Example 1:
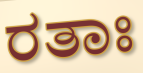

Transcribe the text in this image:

ರತಾಃ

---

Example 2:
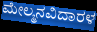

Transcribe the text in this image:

ಮೇಲ್ಮನವಿದಾರಳ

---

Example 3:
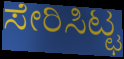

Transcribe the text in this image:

ಸೇರಿಸಿಟ್ಟ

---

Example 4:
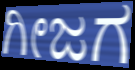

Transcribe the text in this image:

ಗೀಜಗ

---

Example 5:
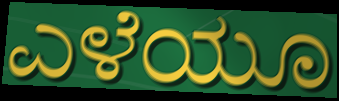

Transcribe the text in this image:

ಎಳೆಯೂ